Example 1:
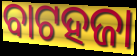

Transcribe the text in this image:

ବାଟହଜା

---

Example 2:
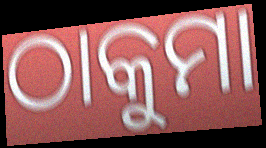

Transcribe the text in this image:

ଠାକୁମା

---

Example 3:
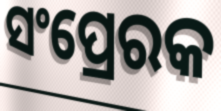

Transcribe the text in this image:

ସଂପ୍ରେରକ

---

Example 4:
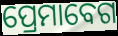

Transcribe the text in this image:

ପ୍ରେମାବେଗ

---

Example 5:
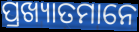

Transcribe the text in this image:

ପ୍ରଖ୍ୟାତମାନେ